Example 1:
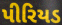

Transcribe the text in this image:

પીરિયડ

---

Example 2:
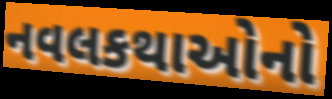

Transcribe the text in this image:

નવલકથાઓનો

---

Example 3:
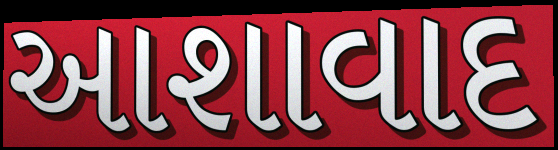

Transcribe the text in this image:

આશાવાદ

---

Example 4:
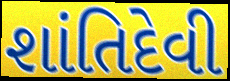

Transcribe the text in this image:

શાંતિદેવી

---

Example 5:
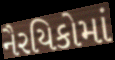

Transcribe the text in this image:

નૈરયિકોમાં